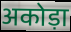
अकोड़ा